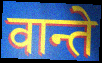
वान्ते